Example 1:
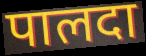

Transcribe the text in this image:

पालदा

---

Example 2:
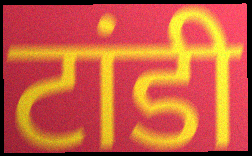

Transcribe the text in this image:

टांडी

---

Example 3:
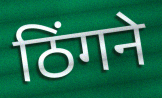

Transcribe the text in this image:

ठिंगने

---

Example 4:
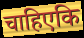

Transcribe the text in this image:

चाहिएकि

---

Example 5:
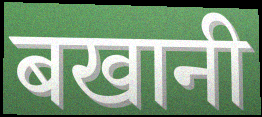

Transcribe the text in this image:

बखानी